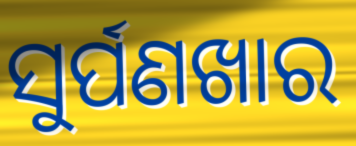
ସୁର୍ପଣଖାର